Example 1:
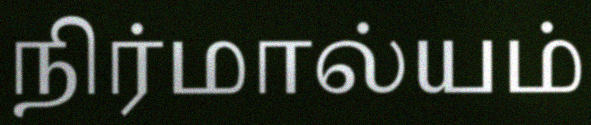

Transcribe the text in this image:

நிர்மால்யம்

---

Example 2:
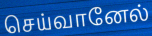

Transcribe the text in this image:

செய்வானேல்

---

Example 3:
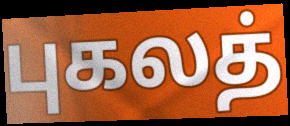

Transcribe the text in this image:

புகலத்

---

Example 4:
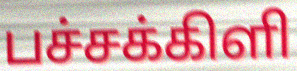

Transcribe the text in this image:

பச்சக்கிளி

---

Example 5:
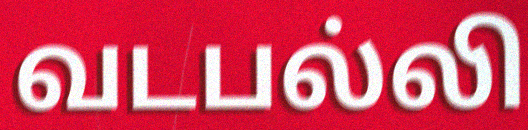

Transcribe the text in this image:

வடபல்லி